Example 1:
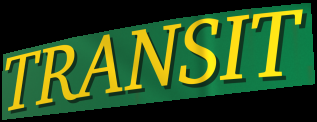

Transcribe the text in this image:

TRANSIT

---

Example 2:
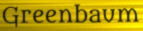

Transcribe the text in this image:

Greenbaum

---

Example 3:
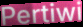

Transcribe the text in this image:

Pertiwi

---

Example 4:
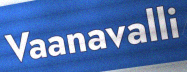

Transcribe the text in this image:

Vaanavalli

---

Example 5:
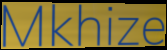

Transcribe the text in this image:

Mkhize